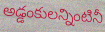
అడ్డంకులన్నింటినీ